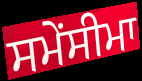
ਸਮੇਂਸੀਮਾ